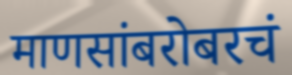
माणसांबरोबरचं